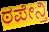
ಠಪೇನ್ತಿ